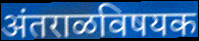
अंतराळविषयक